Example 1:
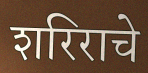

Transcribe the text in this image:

शरिराचे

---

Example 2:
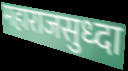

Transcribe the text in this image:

महाराजसुध्दा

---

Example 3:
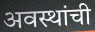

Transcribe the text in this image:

अवस्थांची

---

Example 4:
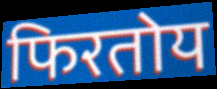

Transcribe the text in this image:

फिरतोय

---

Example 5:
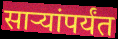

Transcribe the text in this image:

साऱ्यांपर्यंत